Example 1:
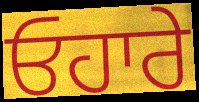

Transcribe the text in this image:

ਓਹਾਰੇ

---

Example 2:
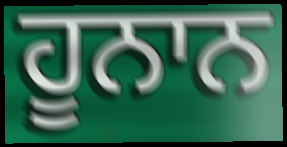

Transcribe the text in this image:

ਹੂਨਾਨ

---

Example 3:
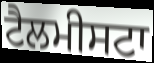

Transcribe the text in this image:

ਟੈਲਮੀਸਟਾ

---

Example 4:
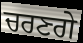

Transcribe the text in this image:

ਚਰਣਗੇ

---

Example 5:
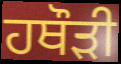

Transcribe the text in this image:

ਹਥੌੜੀ